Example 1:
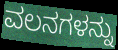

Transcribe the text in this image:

ವಲನಗಳನ್ನು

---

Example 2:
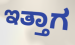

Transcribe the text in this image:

ಇತ್ತಾಗ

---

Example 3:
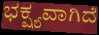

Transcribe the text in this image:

ಭಕ್ಷ್ಯವಾಗಿದೆ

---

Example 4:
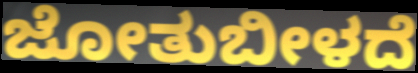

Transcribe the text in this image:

ಜೋತುಬೀಳದೆ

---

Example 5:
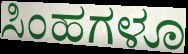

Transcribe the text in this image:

ಸಿಂಹಗಳೂ